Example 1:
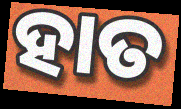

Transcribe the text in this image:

ହାତ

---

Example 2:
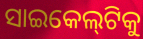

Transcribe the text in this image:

ସାଇକେଲ୍‌ଟିକୁ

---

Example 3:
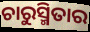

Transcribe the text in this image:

ଚାରୁସ୍ମିତାର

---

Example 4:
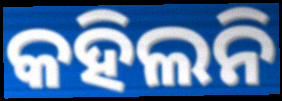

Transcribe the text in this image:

କହିଲନି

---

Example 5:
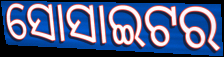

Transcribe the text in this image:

ସୋସାଇଟର